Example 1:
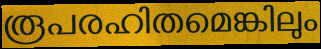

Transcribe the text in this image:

രൂപരഹിതമെങ്കിലും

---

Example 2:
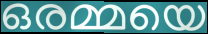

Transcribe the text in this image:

ഒരമ്മയെ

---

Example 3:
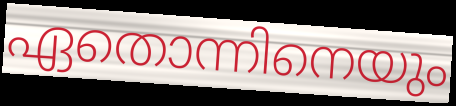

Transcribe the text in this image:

ഏതൊന്നിനെയും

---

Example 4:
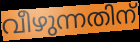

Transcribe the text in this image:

വീഴുന്നതിന്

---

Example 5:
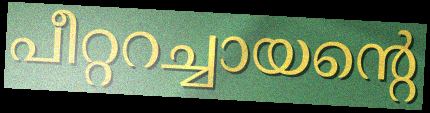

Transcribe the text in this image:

പീറ്ററച്ചായന്റെ